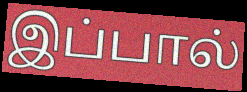
இப்பால்